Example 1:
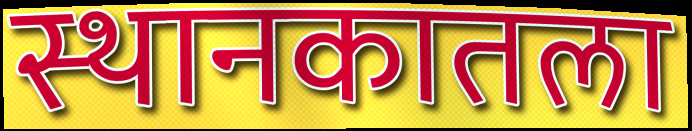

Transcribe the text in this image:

स्थानकातला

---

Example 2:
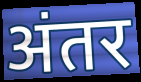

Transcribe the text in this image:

अंतर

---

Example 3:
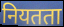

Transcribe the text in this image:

नियतता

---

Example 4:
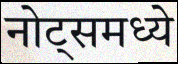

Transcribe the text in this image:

नोट्समध्ये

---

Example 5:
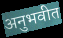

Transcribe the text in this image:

अनुभवीत